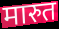
मारुत